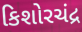
કિશોરચંદ્ર